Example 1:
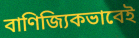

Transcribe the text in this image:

বাণিজ্যিকভাবেই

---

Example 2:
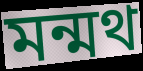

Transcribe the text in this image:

মন্মথ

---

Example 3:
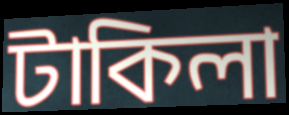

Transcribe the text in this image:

টাকিলা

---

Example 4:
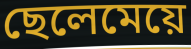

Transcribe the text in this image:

ছেলেমেয়ে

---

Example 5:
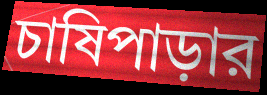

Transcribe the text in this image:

চাষিপাড়ার